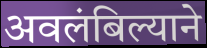
अवलंबिल्याने